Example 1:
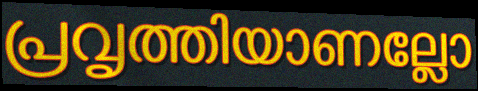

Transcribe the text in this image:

പ്രവൃത്തിയാണല്ലോ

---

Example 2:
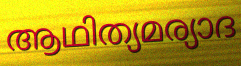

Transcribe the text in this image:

ആഥിത്യമര്യാദ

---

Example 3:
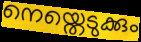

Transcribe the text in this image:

നെയ്തെടുക്കും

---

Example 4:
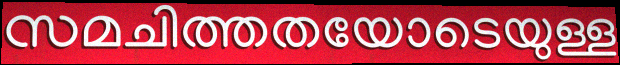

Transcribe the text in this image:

സമചിത്തതയോടെയുള്ള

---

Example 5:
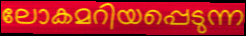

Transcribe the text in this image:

ലോകമറിയപ്പെടുന്ന